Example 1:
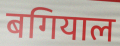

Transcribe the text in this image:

बगियाल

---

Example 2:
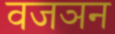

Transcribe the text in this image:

वजञन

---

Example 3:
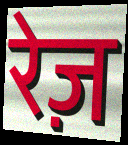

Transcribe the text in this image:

रेज़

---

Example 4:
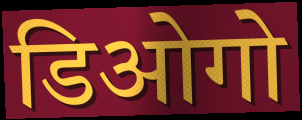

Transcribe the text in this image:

डिओगो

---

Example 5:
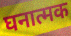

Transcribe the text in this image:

घनात्मक